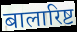
बालारिष्ट